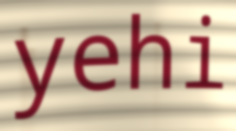
yehi